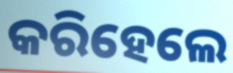
କରିହେଲେ